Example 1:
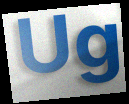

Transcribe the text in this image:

Ug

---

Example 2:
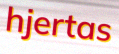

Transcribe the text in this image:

hjertas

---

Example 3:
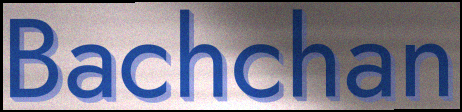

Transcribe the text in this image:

Bachchan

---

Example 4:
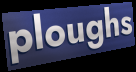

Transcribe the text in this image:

ploughs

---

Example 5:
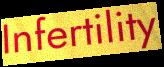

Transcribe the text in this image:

Infertility